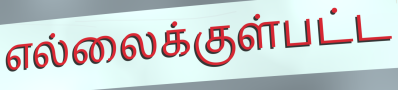
எல்லைக்குள்பட்ட